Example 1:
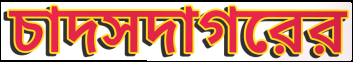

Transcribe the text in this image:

চাদসদাগরের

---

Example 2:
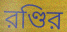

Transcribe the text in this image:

রণ্ডির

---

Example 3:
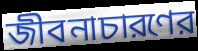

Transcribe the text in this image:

জীবনাচারণের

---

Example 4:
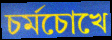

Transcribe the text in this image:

চর্মচোখে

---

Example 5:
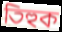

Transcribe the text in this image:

তিহুক